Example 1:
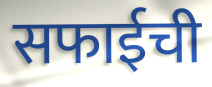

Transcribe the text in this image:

सफाईची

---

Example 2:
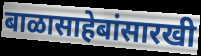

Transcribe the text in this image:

बाळासाहेबांसारखी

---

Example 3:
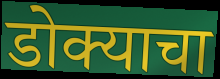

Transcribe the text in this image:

डोक्याचा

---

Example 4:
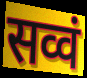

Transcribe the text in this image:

सव्वं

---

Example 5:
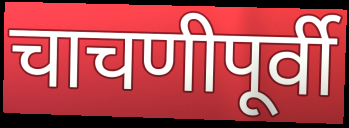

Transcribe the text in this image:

चाचणीपूर्वी